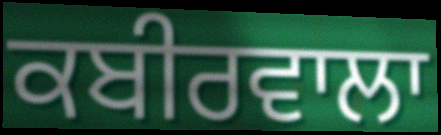
ਕਬੀਰਵਾਲਾ